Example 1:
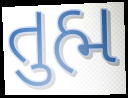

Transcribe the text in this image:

તુહ્મ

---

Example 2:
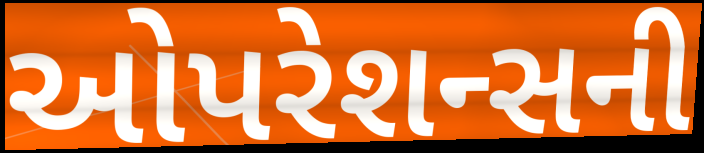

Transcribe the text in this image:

ઓપરેશન્સની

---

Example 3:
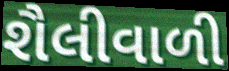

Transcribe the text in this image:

શૈલીવાળી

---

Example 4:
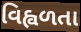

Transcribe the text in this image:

વિહ્વળતા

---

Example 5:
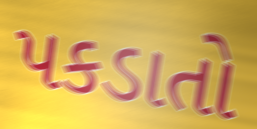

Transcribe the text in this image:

પકડાતો